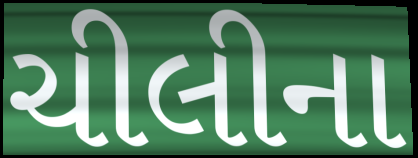
ચીલીના